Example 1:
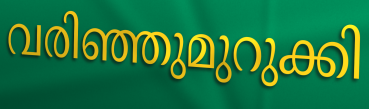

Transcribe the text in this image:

വരിഞ്ഞുമുറുക്കി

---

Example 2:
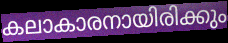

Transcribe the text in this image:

കലാകാരനായിരിക്കും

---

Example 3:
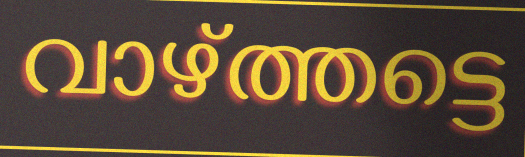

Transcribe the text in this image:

വാഴ്ത്തട്ടെ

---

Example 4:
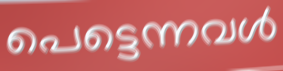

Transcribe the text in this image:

പെട്ടെന്നവൾ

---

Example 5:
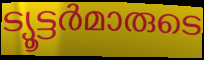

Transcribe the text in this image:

ട്യൂട്ടർമാരുടെ